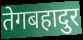
तेगबहादुर